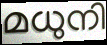
മധുനി